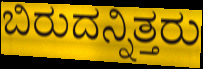
ಬಿರುದನ್ನಿತ್ತರು